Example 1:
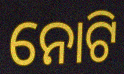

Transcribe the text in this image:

ନୋଟି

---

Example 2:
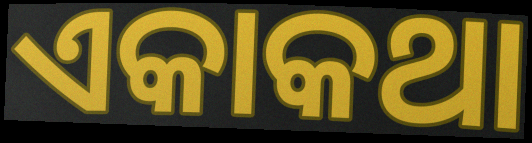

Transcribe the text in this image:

ଏକାକଥା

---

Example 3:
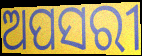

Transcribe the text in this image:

ଅପସରୀ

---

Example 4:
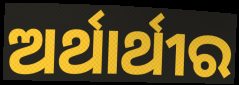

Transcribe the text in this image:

ଅର୍ଥାର୍ଥୀର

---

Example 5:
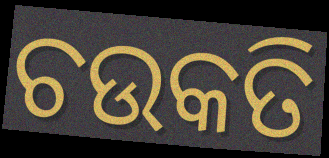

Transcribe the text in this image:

ଚଉକତି